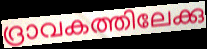
ദ്രാവകത്തിലേക്കു